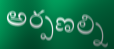
అర్పణల్ని